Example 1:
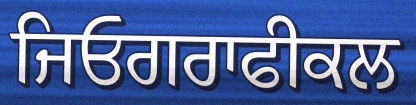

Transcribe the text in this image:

ਜਿਓਗਰਾਫੀਕਲ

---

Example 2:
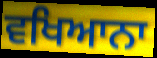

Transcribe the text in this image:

ਵਖਿਆਨਾ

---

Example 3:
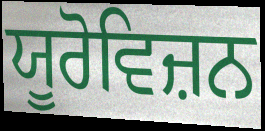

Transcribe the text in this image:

ਯੂਰੋਵਿਜ਼ਨ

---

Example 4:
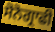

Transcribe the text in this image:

ਸੋਨੋਗ੍ਰਾਫੀ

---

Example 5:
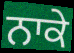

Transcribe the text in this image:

ਨਾਕੇ